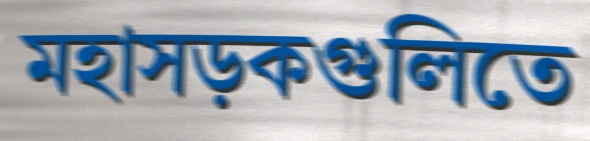
মহাসড়কগুলিতে